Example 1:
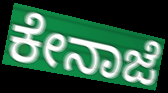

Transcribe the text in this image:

ಕೇನಾಜೆ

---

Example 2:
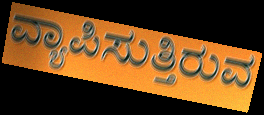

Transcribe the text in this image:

ವ್ಯಾಪಿಸುತ್ತಿರುವ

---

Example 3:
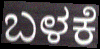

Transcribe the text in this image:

ಬಳಕೆ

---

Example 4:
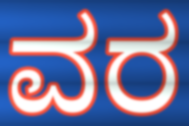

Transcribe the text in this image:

ವರ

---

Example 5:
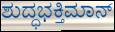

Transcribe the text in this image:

ಶುದ್ಧಭಕ್ತಿಮಾನ್